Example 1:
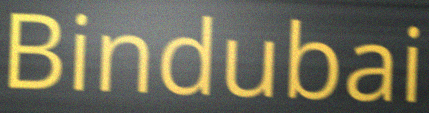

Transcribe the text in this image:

Bindubai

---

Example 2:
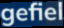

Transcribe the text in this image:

gefiel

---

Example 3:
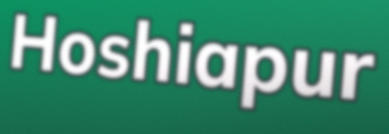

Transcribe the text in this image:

Hoshiapur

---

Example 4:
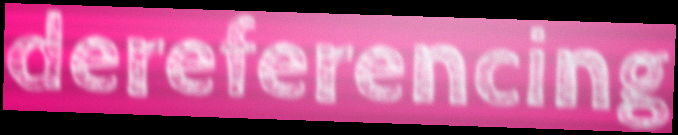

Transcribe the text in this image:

dereferencing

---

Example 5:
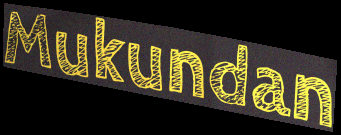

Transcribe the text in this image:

Mukundan